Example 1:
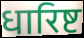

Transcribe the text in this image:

धारिष्ट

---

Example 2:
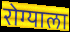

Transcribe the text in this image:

रोग्याला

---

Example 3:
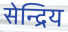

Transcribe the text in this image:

सेन्द्रिय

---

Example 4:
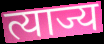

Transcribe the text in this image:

त्याज्य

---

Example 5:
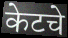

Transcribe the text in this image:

केटचे